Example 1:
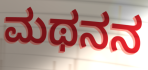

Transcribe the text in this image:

ಮಥನನ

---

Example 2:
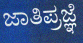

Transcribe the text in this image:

ಜಾತಿಪ್ರಜ್ಞೆ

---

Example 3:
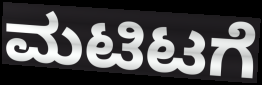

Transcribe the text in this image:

ಮಟಿಟಗೆ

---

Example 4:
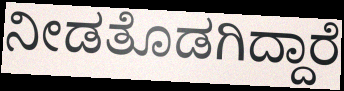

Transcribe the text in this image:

ನೀಡತೊಡಗಿದ್ದಾರೆ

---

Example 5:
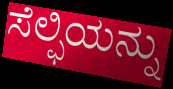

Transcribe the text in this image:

ಸೆಲ್ಫಿಯನ್ನು